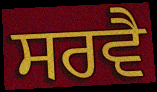
ਸਰਵੈ